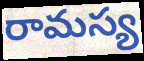
రామస్య